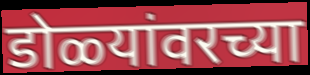
डोळ्यांवरच्या